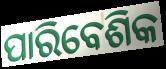
ପାରିବେଶିକ